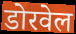
डोरवेल